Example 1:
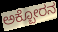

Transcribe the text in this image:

ಅಕ್ಬೋರನ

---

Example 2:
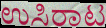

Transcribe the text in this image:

ಉಸಿರಾಟ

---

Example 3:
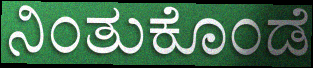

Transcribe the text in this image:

ನಿಂತುಕೊಂಡೆ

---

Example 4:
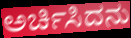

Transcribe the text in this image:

ಅರ್ಚಿಸಿದನು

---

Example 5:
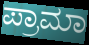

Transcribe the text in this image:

ಪ್ರಾಮಾ